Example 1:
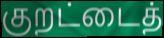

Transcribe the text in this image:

குறட்டைத்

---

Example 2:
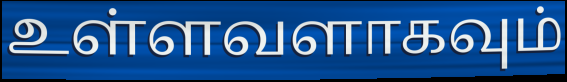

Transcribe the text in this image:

உள்ளவளாகவும்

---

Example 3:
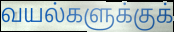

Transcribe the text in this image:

வயல்களுக்குக்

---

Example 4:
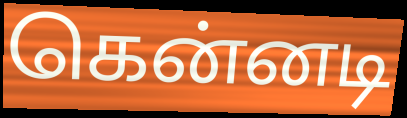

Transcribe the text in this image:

கென்னடி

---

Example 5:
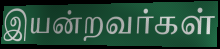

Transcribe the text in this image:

இயன்றவர்கள்